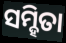
ସମ୍ହିତା